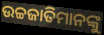
ଉଚ୍ଚଜାତିମାନଙ୍କୁ